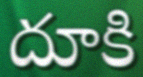
దూకి